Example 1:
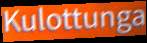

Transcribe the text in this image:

Kulottunga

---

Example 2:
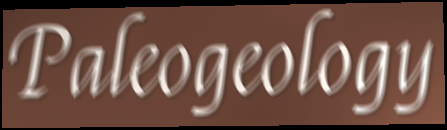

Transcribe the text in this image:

Paleogeology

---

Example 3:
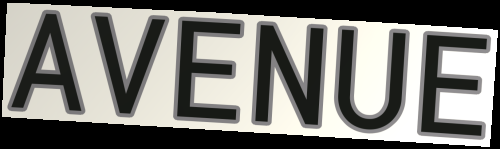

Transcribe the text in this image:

AVENUE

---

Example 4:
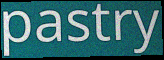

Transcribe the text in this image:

pastry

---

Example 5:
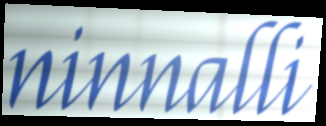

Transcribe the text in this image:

ninnalli